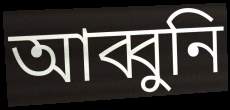
আব্বুনি